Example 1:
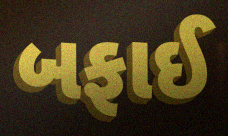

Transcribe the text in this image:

બફાઈ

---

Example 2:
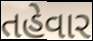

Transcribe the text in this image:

તહેવાર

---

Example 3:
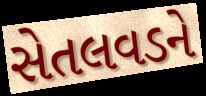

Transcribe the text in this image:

સેતલવડને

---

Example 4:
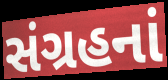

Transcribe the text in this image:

સંગ્રહનાં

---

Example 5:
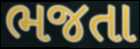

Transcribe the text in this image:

ભજતા